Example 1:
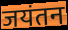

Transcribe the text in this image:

जयंतन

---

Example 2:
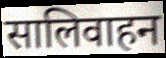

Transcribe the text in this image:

सालिवाहन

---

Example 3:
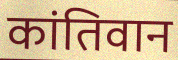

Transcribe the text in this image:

कांतिवान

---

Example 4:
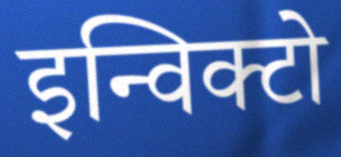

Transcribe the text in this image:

इन्विक्टो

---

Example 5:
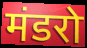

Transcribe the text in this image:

मंडरो